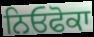
ਨਿਓਫੋਕਾ